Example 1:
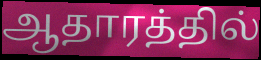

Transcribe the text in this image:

ஆதாரத்தில்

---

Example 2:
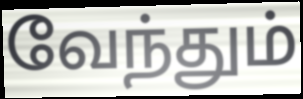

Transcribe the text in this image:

வேந்தும்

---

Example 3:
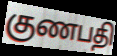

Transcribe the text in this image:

குணபதி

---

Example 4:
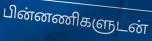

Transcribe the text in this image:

பின்னணிகளுடன்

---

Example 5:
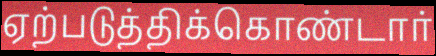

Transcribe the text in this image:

ஏற்படுத்திக்கொண்டார்